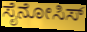
ಸೈನೋಸಿಸ್